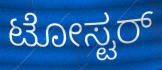
ಟೋಸ್ಟರ್